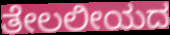
ತೇಲಲೀಯದ